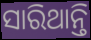
ସାରିଥାନ୍ତି